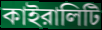
কাইরালিটি